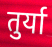
तुर्या